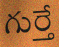
గుర్తే